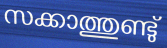
സക്കാത്തുണ്ടു്